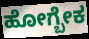
ಹೋಗ್ಬೇಕ